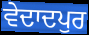
ਵੇਦਾਦਪੁਰ